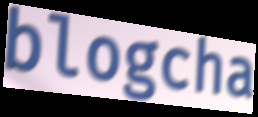
blogcha